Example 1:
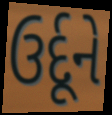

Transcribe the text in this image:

ઉર્દૂને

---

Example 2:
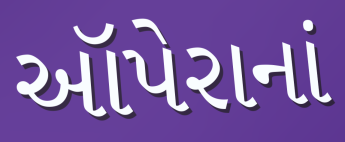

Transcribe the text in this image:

ઑપેરાનાં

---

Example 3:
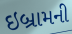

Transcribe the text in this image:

ઇબ્રામની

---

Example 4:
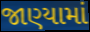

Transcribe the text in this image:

જાણ્યામાં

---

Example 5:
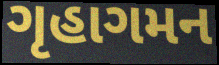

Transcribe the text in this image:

ગૃહાગમન